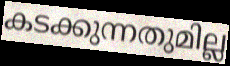
കടക്കുന്നതുമില്ല